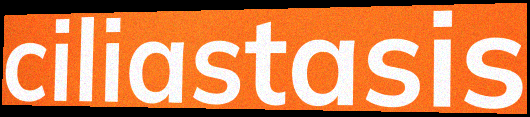
ciliastasis